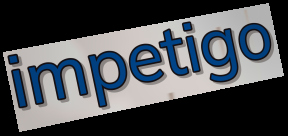
impetigo